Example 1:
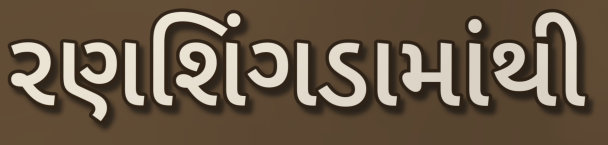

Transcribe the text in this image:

રણશિંગડામાંથી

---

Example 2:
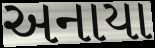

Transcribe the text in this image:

અનાયા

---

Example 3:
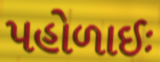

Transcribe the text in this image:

પહોળાઈઃ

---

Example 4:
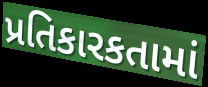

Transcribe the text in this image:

પ્રતિકારકતામાં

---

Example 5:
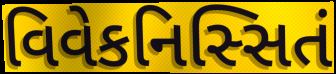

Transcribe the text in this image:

વિવેકનિસ્સિતં